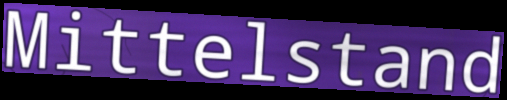
Mittelstand